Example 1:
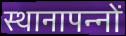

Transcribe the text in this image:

स्थानापन्नों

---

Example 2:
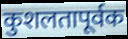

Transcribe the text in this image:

कुशलतापूर्वक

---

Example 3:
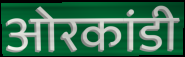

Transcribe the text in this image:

ओरकांडी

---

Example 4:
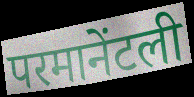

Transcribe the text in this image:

परमानेंटली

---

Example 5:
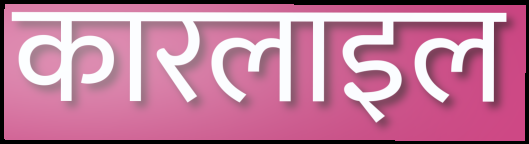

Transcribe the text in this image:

कारलाइल